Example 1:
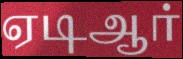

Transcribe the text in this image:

ஏடிஆர்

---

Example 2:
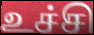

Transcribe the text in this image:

உச்சி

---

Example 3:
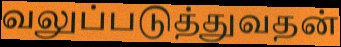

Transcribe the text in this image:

வலுப்படுத்துவதன்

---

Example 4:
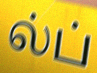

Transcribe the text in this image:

ல்ப்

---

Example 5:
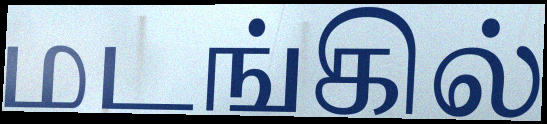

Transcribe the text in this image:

மடங்கில்